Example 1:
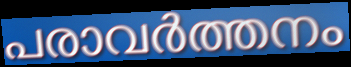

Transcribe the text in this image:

പരാവർത്തനം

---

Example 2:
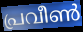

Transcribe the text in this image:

പ്രവീൺ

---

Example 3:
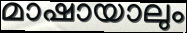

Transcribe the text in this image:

മാഷായാലും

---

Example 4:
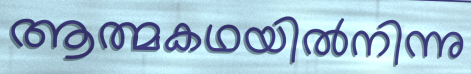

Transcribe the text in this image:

ആത്മകഥയിൽനിന്നു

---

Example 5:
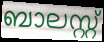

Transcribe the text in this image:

ബാലസ്റ്റ്